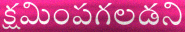
క్షమింపగలడని